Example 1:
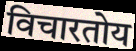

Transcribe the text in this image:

विचारतोय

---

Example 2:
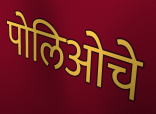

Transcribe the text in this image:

पोलिओचे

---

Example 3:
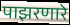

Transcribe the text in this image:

पाझरणारे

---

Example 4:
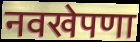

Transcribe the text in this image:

नवखेपणा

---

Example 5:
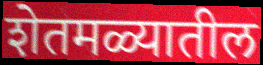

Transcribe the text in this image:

शेतमळ्यातील